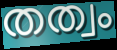
തത്വം